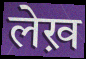
लेख़